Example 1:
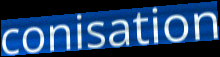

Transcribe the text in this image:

conisation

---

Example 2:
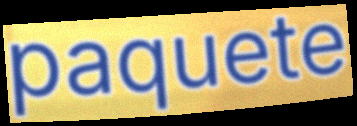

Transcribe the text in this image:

paquete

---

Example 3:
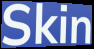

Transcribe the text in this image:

Skin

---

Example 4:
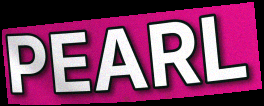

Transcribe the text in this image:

PEARL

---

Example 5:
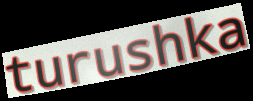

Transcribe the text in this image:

turushka